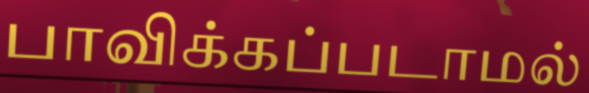
பாவிக்கப்படாமல்